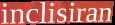
inclisiran